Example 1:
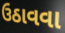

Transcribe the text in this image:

ઉઠાવવા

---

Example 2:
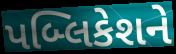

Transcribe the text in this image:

પબ્લિકેશને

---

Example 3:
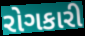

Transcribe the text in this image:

રોગકારી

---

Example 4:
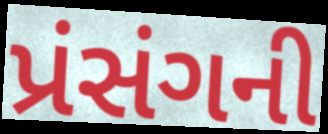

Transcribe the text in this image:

પ્રંસંગની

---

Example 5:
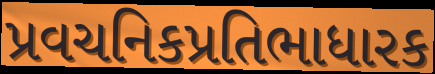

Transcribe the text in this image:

પ્રવચનિકપ્રતિભાધારક